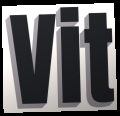
Vit